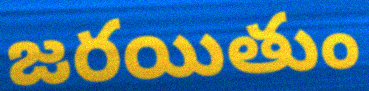
జరయితుం